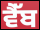
ਵੈੱਬ